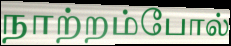
நாற்றம்போல்